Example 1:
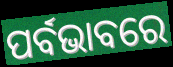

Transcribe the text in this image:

ପର୍ବଭାବରେ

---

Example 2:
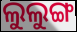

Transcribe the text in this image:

ଲୁଲୁଙ୍ଗ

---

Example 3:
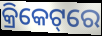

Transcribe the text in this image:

କ୍ରିକେଟ୍‌ରେ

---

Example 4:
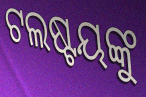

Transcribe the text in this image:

ଟଲଷ୍ଟୟଙ୍କୁ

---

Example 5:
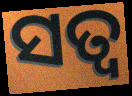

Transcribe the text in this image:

ସତ୍ୱ